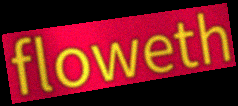
floweth